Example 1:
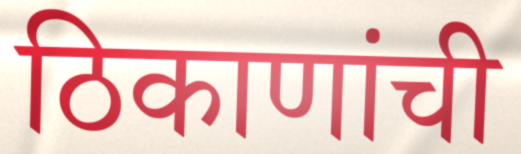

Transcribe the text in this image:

ठिकाणांची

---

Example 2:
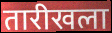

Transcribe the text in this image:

तारीखला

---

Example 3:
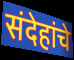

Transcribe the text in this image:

संदेहांचे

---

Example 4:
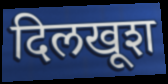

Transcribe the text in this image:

दिलखूश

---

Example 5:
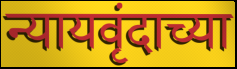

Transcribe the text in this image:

न्यायवृंदाच्या